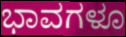
ಭಾವಗಳೂ